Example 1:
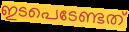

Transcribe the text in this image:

ഇടപെടേണ്ടത്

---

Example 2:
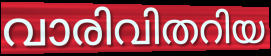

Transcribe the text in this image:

വാരിവിതറിയ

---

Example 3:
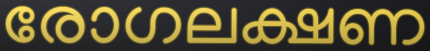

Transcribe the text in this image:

രോഗലക്ഷണ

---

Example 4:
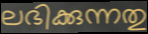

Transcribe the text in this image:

ലഭിക്കുന്നതു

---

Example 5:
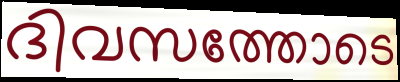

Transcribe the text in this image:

ദിവസത്തോടെ